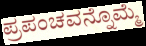
ಪ್ರಪಂಚವನ್ನೊಮ್ಮೆ